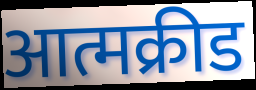
आत्मक्रीड